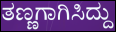
ತಣ್ಣಗಾಗಿಸಿದ್ದು